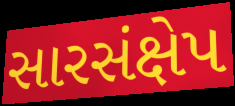
સારસંક્ષેપ